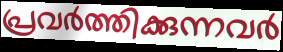
പ്രവർത്തിക്കുന്നവർ